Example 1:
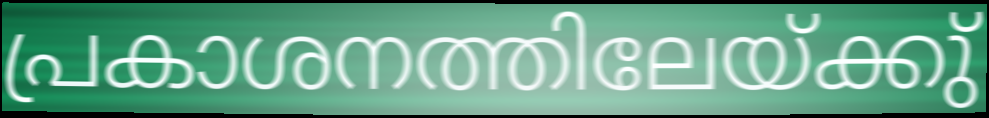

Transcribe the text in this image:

പ്രകാശനത്തിലേയ്ക്കു്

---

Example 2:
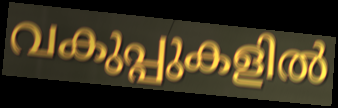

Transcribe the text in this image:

വകുപ്പുകളിൽ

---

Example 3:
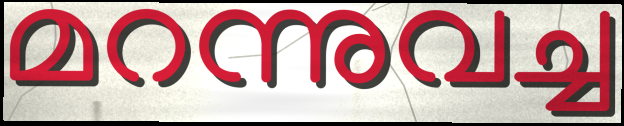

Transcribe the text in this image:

മറന്നുവച്ച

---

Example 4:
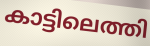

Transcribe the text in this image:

കാട്ടിലെത്തി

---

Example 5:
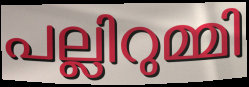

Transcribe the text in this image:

പല്ലിറുമ്മി